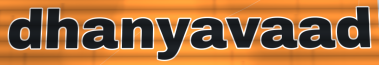
dhanyavaad